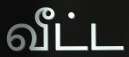
வீட்ட